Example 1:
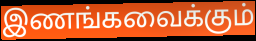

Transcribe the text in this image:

இணங்கவைக்கும்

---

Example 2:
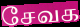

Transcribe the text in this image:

சேவக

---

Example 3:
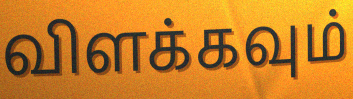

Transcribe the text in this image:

விளக்கவும்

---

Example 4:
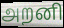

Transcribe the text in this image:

அறனி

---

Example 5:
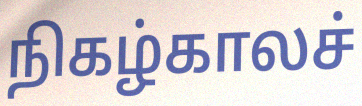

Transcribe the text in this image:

நிகழ்காலச்